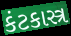
કંટકાસ્ત્ર